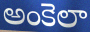
అంకెలా